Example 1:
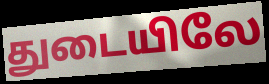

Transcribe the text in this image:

துடையிலே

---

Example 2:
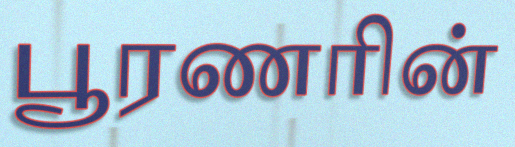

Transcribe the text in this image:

பூரணரின்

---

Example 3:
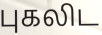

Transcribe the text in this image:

புகலிட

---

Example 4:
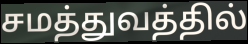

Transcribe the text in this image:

சமத்துவத்தில்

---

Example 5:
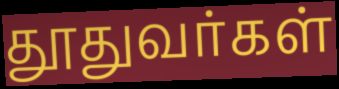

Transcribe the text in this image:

தூதுவர்கள்